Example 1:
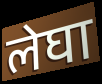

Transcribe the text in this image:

लेघा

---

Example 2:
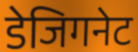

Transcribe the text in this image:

डेजिगनेट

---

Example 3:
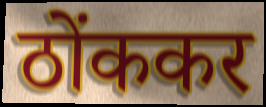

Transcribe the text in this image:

ठोंककर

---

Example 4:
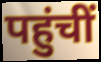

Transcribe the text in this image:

पहुंचीं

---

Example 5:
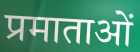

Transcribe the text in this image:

प्रमाताओं